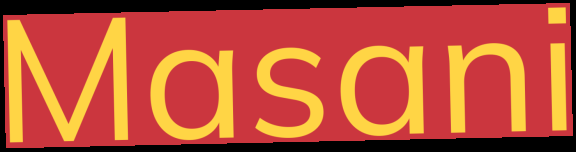
Masani